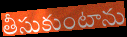
తీసుకుంటాను